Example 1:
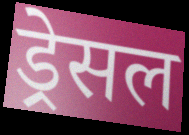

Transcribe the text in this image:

ड्रेसल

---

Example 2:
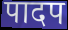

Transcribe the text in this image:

पादप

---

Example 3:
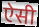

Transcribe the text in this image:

ऐसी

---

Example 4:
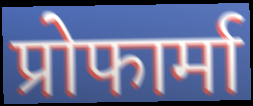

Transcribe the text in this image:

प्रोफार्मा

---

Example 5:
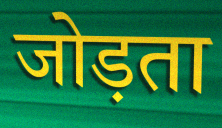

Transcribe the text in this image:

जोड़ता